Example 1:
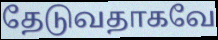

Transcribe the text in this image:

தேடுவதாகவே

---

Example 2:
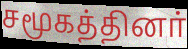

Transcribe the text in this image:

சமூகத்தினர்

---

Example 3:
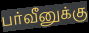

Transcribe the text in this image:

பர்வீனுக்கு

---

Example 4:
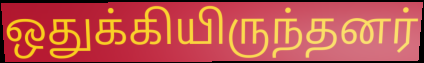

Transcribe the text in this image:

ஒதுக்கியிருந்தனர்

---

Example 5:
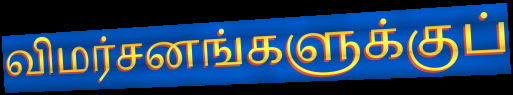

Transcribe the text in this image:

விமர்சனங்களுக்குப்